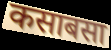
कसाबसा